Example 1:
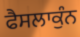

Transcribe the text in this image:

ਫੈਸਲਾਕੁੰਨ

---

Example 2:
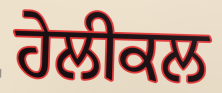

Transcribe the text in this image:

ਹੇਲੀਕਲ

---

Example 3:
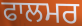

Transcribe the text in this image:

ਫਾਲਮਰ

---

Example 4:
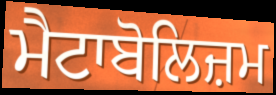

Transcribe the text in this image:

ਮੈਟਾਬੋਲਿਜ਼ਮ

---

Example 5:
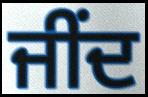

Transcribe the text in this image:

ਜੀਂਦ